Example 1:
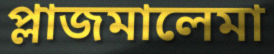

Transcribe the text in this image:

প্লাজমালেমা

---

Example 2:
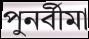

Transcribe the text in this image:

পুনর্বীমা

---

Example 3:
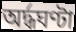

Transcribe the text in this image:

অর্দ্ধঘণ্টা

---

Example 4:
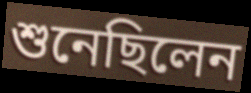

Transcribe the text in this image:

শুনেছিলেন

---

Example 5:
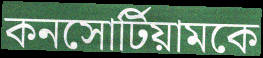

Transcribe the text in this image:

কনসোর্টিয়ামকে